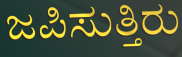
ಜಪಿಸುತ್ತಿರು